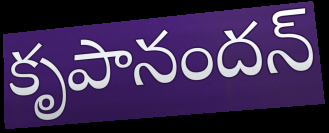
కృపానందన్